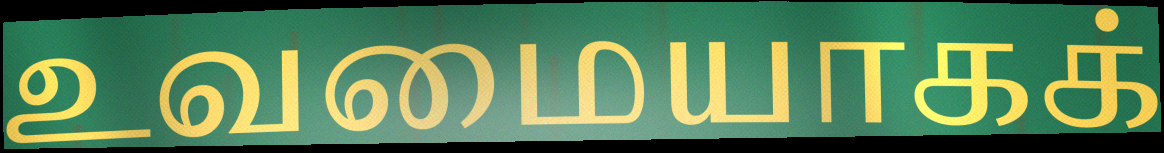
உவமையாகக்